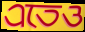
এতেও